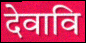
देवावि